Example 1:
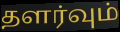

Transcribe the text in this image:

தளர்வும்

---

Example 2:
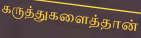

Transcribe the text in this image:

கருத்துகளைத்தான்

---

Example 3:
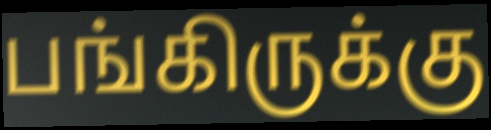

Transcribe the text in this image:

பங்கிருக்கு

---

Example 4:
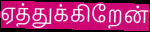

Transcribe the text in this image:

ஏத்துக்கிறேன்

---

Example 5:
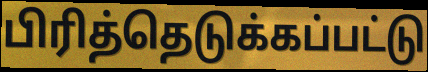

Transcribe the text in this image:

பிரித்தெடுக்கப்பட்டு